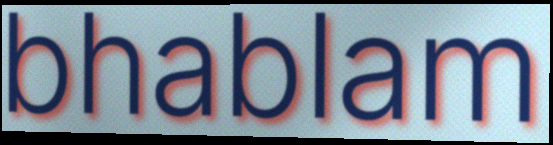
bhablam